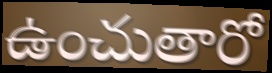
ఉంచుతారో